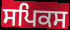
ਸਪਿਕਸ